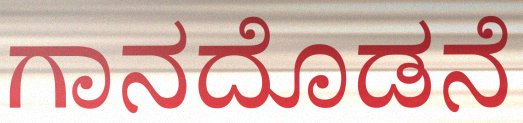
ಗಾನದೊಡನೆ